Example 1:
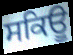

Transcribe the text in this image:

ਸਕਿਊ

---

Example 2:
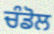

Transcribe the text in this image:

ਚੰਡੋਲ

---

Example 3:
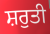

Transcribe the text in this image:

ਸ਼ਰੁਤੀ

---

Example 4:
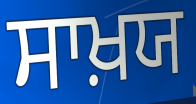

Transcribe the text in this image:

ਸਾਖ਼ਯ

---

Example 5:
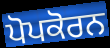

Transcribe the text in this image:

ਪੋਪਕੋਰਨ